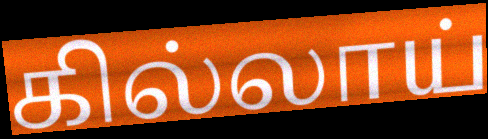
கில்லாய்